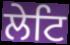
ਲੇਟਿ